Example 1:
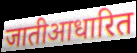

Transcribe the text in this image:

जातीआधारित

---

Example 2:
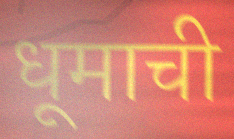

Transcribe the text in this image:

धूमाची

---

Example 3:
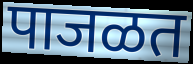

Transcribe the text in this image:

पाजळत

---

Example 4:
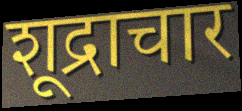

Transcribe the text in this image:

शूद्राचार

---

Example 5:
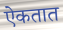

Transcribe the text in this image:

ऐकतात